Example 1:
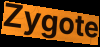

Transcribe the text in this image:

Zygote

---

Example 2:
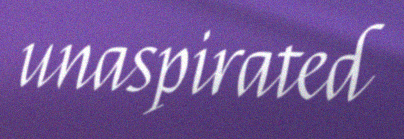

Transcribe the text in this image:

unaspirated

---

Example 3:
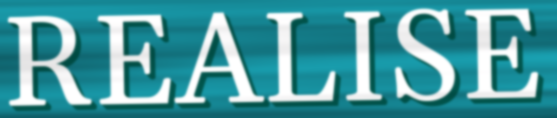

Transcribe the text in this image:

REALISE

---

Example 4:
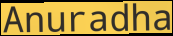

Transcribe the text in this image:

Anuradha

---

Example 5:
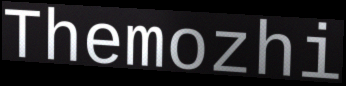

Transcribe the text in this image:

Themozhi